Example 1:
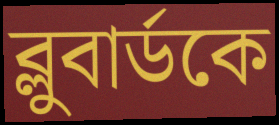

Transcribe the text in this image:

ব্লুবার্ডকে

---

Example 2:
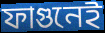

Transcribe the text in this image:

ফাগুনেই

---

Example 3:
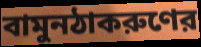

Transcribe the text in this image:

বামুনঠাকরুণের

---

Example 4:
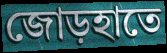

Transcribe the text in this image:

জোড়হাতে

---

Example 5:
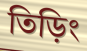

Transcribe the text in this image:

তিড়িং